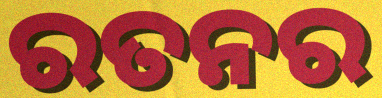
ରତନର